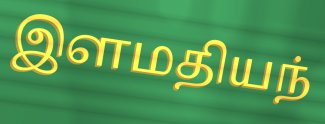
இளமதியந்